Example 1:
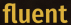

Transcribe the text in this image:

fluent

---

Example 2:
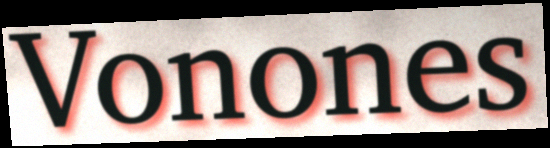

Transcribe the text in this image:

Vonones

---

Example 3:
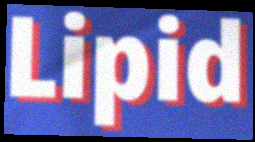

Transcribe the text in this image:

Lipid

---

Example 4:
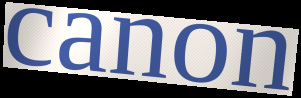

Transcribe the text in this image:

canon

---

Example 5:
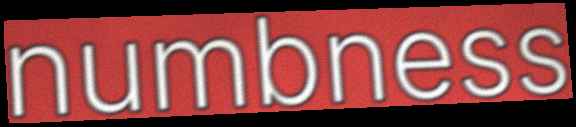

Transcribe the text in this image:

numbness